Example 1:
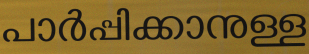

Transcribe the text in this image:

പാർപ്പിക്കാനുള്ള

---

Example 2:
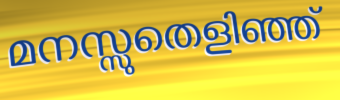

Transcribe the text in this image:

മനസ്സുതെളിഞ്ഞ്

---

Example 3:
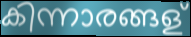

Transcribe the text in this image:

കിന്നാരങ്ങള്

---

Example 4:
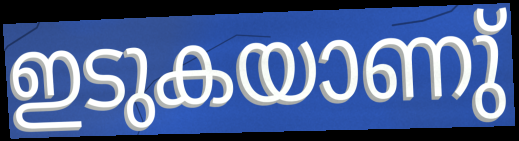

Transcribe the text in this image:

ഇടുകയാണു്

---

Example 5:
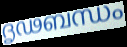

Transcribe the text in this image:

ദൃഢബന്ധം